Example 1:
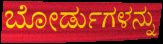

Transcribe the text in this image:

ಬೋರ್ಡುಗಳನ್ನು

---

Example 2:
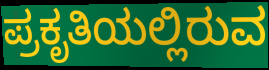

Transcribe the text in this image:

ಪ್ರಕೃತಿಯಲ್ಲಿರುವ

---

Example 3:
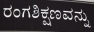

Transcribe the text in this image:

ರಂಗಶಿಕ್ಷಣವನ್ನು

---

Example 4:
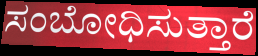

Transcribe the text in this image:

ಸಂಬೋಧಿಸುತ್ತಾರೆ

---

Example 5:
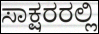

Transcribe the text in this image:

ಸಾಕ್ಷರರಲ್ಲಿ